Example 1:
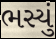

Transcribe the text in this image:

ભસ્યું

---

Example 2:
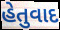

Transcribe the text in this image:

હેતુવાદ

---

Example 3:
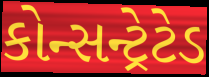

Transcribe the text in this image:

કોન્સન્ટ્રેટેડ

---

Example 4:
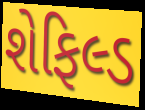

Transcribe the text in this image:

શેફિલ્ડ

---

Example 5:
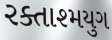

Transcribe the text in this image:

રક્તાશ્મયુગ